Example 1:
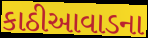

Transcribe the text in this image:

કાઠીઆવાડના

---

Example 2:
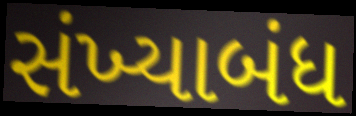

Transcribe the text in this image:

સંખ્યાબંધ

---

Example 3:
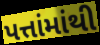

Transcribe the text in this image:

પત્તાંમાંથી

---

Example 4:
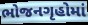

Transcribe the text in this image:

ભોજનગૃહોમાં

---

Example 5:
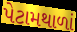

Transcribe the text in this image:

પેટામથાળાં